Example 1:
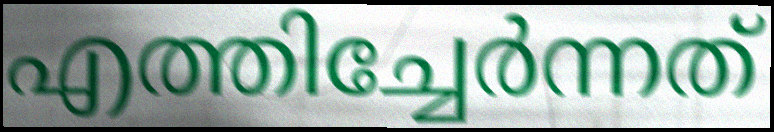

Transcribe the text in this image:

എത്തിച്ചേർന്നത്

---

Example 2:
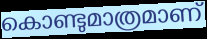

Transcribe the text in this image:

കൊണ്ടുമാത്രമാണ്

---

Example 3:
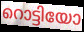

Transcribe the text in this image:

റൊട്ടിയോ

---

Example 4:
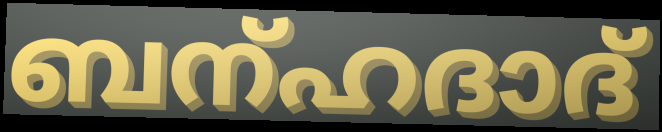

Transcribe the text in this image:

ബന്ഹദാദ്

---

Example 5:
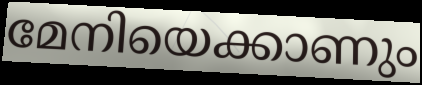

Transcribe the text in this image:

മേനിയെക്കാണും